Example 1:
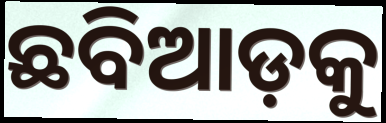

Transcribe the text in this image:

ଛବିଆଡ଼କୁ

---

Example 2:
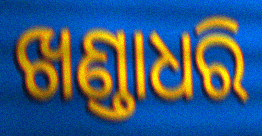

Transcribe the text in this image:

ଖଣ୍ଡାଧରି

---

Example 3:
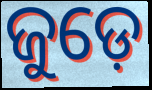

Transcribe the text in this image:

ଜୁଡ଼େ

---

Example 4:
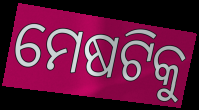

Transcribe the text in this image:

ମେଷଟିକୁ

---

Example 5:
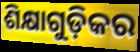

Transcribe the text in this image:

ଶିକ୍ଷାଗୁଡ଼ିକର